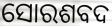
ସୋରଶବଦ